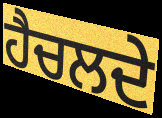
ਹੈਚਲਦੇ